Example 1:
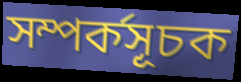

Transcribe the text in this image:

সম্পর্কসূচক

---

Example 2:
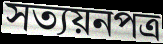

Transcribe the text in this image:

সত্যয়নপত্র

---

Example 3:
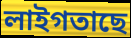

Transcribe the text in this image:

লাইগতাছে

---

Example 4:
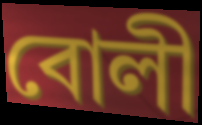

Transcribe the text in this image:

বোলী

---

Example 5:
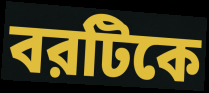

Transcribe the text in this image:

বরটিকে